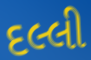
દલ્લી